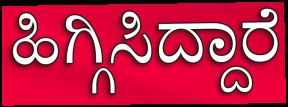
ಹಿಗ್ಗಿಸಿದ್ದಾರೆ